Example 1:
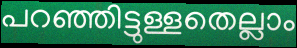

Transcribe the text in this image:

പറഞ്ഞിട്ടുള്ളതെല്ലാം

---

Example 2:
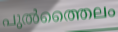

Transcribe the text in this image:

പുൽത്തൈലം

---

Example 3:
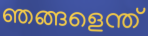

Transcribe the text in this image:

ഞങ്ങളെന്ത്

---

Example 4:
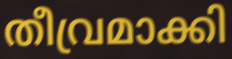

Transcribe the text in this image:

തീവ്രമാക്കി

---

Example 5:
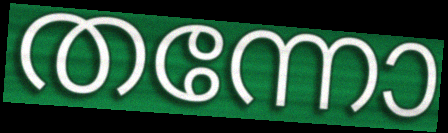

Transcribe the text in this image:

തന്നോ